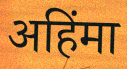
अहिंमा